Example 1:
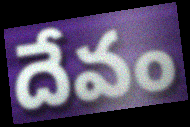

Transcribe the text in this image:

దేవం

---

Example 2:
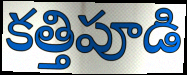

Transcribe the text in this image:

కత్తిపూడి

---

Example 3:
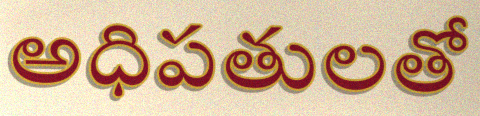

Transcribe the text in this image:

అధిపతులతో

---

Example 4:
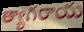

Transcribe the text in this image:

త్యాగరాయ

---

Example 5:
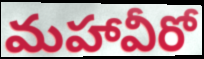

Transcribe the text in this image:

మహావీరో